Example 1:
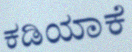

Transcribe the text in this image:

ಕಡಿಯಾಕೆ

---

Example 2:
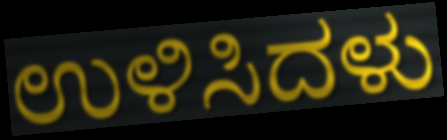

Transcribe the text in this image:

ಉಳಿಸಿದಳು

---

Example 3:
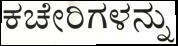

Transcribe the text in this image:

ಕಚೇರಿಗಳನ್ನು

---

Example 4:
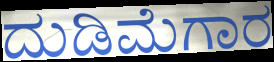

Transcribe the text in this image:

ದುಡಿಮೆಗಾರ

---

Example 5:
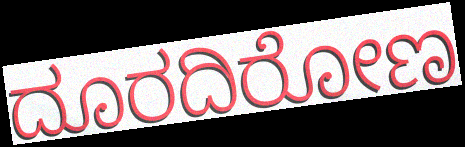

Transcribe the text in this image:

ದೂರದಿರೋಣ